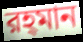
রহ্‌মান